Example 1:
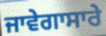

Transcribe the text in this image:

ਜਾਵੇਗਾਸਾਰੇ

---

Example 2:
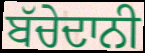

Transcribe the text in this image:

ਬੱਚੇਦਾਨੀ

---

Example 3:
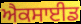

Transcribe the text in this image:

ਐਕਸਾਈਡ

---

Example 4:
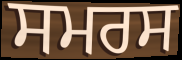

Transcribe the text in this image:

ਸਮਰਸ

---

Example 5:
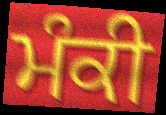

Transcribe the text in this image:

ਮੰਕੀ